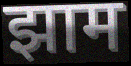
झाम